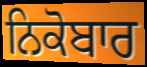
ਨਿਕੋਬਾਰ